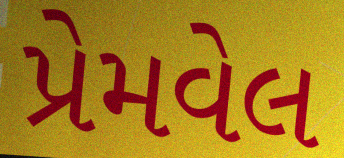
પ્રેમવેલ